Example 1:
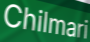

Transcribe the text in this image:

Chilmari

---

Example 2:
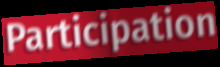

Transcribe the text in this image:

Participation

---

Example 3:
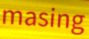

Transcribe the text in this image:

masing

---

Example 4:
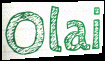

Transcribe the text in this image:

Olai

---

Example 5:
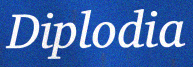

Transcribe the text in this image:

Diplodia